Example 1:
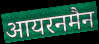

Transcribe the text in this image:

आयरनमैन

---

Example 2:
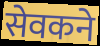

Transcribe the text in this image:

सेवकने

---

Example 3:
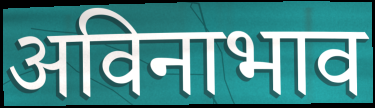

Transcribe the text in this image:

अविनाभाव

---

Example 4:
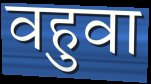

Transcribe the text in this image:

वहुवा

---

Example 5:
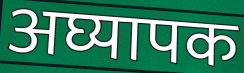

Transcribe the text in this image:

अघ्यापक